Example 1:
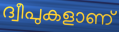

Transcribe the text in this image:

ദ്വീപുകളാണ്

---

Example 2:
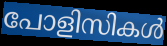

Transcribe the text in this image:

പോളിസികൾ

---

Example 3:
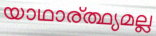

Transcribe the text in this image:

യാഥാര്ത്ഥ്യമല്ല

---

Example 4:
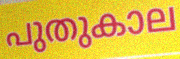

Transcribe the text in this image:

പുതുകാല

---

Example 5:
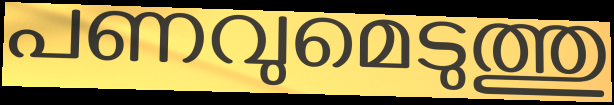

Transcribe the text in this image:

പണവുമെടുത്തു